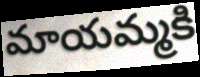
మాయమ్మకి